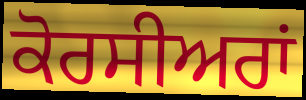
ਕੋਰਸੀਅਰਾਂ